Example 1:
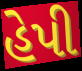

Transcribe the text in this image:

હેપી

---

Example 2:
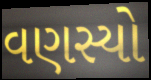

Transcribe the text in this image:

વણસ્યો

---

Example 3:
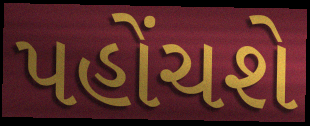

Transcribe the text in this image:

પહોંચશે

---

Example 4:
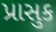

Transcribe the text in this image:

પ્રાસુક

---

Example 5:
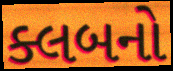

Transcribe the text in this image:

ક્લબનો